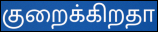
குறைக்கிறதா